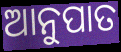
ଆନୁପାତ